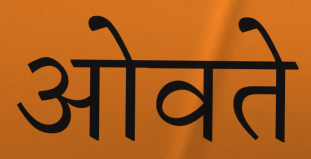
ओवते